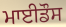
ਮਾਈਡੌਸ